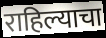
राहिल्याचा